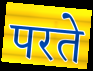
परते